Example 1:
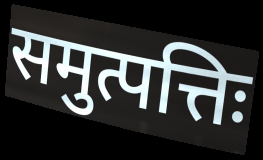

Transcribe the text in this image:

समुत्पत्तिः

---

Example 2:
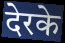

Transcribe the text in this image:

देरके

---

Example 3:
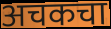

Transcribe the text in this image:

अचकचा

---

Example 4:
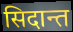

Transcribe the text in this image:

सिदान्त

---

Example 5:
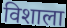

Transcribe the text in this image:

विशाला